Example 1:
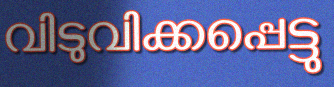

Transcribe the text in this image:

വിടുവിക്കപ്പെട്ടു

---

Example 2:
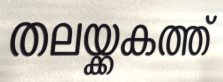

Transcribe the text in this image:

തലയ്ക്കകത്ത്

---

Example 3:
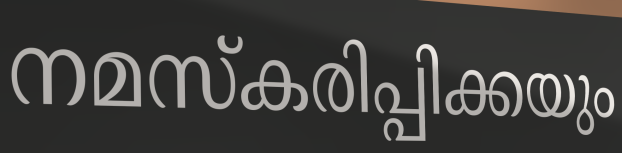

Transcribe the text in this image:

നമസ്കരിപ്പിക്കയും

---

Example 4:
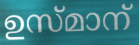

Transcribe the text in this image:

ഉസ്മാന്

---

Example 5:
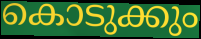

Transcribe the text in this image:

കൊടുക്കും